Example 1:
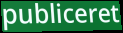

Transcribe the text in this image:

publiceret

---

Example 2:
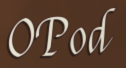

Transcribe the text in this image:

OPod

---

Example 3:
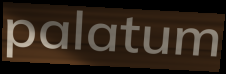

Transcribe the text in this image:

palatum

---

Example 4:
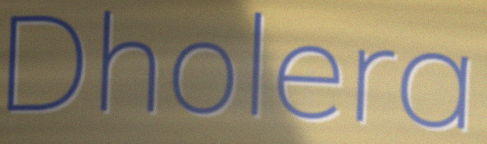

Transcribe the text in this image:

Dholera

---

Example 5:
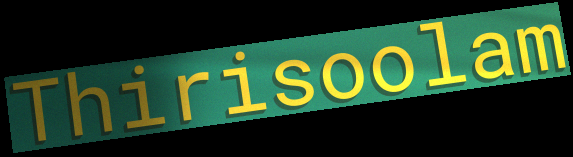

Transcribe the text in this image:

Thirisoolam